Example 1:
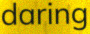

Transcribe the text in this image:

daring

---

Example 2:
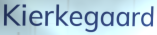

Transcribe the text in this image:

Kierkegaard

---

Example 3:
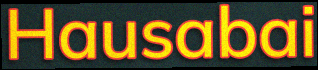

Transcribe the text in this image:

Hausabai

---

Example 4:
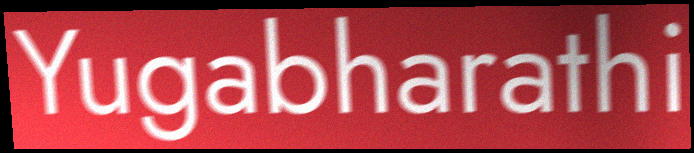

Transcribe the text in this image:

Yugabharathi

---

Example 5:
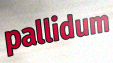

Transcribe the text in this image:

pallidum